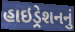
હાઇડ્રેશનનું